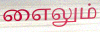
எைலும்